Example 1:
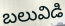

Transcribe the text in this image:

బలువిడి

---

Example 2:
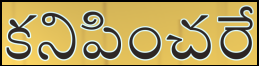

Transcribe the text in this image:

కనిపించరే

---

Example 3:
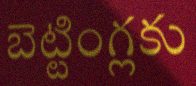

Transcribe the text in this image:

బెట్టింగ్లకు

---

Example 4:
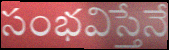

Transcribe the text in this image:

సంభవిస్తేనే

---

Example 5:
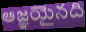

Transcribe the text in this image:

ఆజ్ఞయైనది